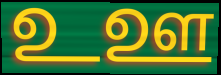
உஊ